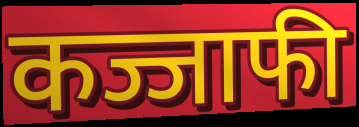
कज्जाफी